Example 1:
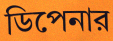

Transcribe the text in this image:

ডিপেনার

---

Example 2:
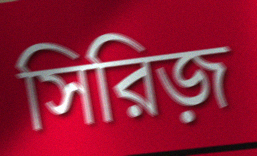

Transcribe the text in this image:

সিরিজ়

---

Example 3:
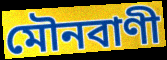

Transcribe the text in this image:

মৌনবাণী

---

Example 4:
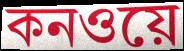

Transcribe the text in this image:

কনওয়ে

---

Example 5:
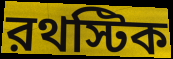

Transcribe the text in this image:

রথস্টিক